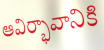
ఆవిర్భావానికి